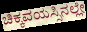
ಚಿಕ್ಕವಯಸ್ಸಿನಲ್ಲೇ